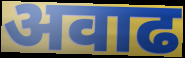
अवाढ